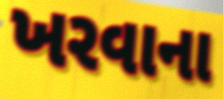
ખરવાના